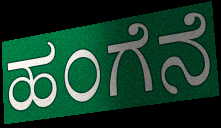
ಹಂಗೆನೆ